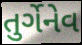
તુર્ગેનેવ